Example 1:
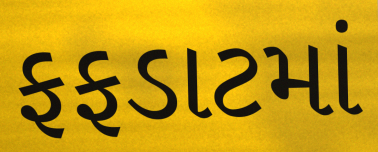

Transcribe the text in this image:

ફફડાટમાં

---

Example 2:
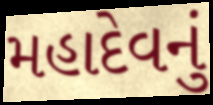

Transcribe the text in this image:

મહાદેવનું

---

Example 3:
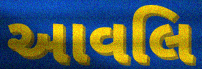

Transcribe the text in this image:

આવલિ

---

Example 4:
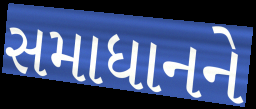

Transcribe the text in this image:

સમાધાનને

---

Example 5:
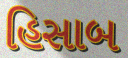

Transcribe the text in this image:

હિસાબ